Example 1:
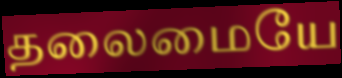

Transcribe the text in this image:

தலைமையே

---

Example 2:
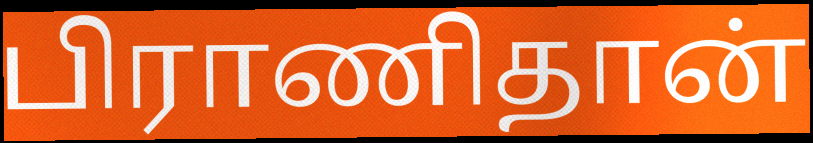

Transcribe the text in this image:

பிராணிதான்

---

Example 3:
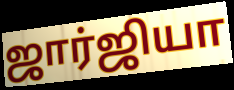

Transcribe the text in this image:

ஜார்ஜியா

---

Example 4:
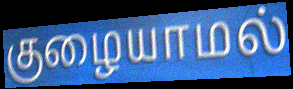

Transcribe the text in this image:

குழையாமல்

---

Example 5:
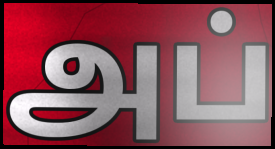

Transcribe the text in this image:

அப்